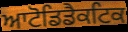
ਆਟੋਡਿਡੈਕਟਿਕ